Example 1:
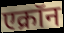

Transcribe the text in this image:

एक्रॉन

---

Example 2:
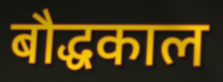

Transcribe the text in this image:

बौद्धकाल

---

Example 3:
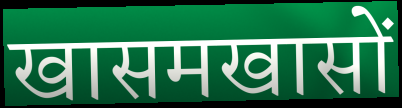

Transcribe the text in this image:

खासमखासों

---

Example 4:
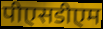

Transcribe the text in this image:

पीएसडीएम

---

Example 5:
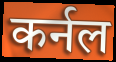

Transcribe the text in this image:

कर्नल